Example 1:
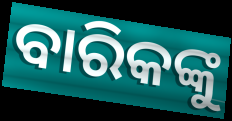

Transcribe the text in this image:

ବାରିକଙ୍କୁ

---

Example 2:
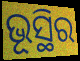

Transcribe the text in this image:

ଭୂସ୍ଥିର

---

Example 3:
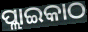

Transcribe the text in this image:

ପ୍ଲାଇକାଠ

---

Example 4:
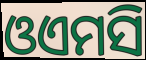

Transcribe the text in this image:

ଓଏମସି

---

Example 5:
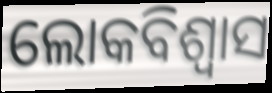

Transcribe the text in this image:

ଲୋକବିଶ୍ୱାସ